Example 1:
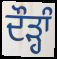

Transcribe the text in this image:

ਦੌੜ੍ਹਾੰ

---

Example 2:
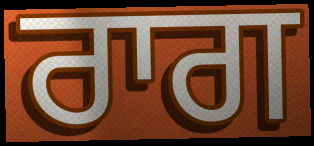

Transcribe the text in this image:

ਰਾਗ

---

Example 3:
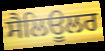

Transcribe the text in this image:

ਸੈਲਿਊਲਰ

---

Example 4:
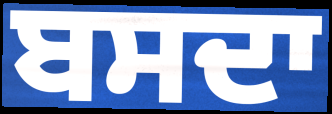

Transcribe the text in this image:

ਬਸਦਾ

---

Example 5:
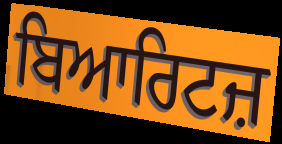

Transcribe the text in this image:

ਬਿਆਰਿਟਜ਼